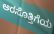
ಅರಸೊತ್ತಿಗೆಯ